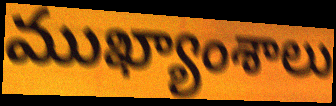
ముఖ్యాంశాలు